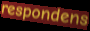
respondens